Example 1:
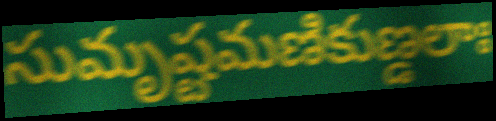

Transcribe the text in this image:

సుమృష్టమణికుణ్డలాః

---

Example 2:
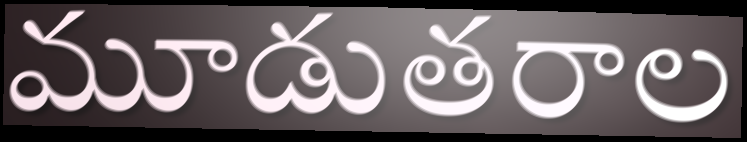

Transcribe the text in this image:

మూడుతరాల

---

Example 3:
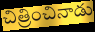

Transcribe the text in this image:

చిత్రించినాడు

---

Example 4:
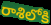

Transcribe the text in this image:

రాశిలోకి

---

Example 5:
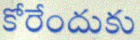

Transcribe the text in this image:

కోరేందుకు